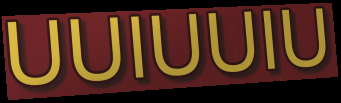
UUIUUIU